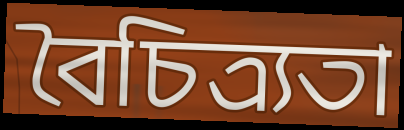
বৈচিত্ৰ্যতা